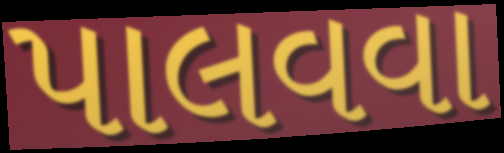
પાલવવા